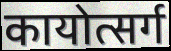
कायोत्सर्ग